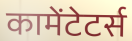
कामेंटेटर्स